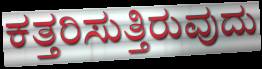
ಕತ್ತರಿಸುತ್ತಿರುವುದು